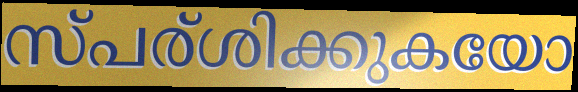
സ്പര്ശിക്കുകയോ